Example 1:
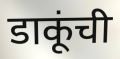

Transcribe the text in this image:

डाकूंची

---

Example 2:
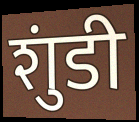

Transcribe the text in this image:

शुंडी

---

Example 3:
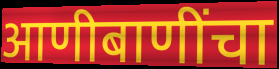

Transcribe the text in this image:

आणीबाणींचा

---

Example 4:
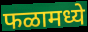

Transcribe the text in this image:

फळामध्ये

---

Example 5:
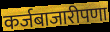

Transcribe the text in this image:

कर्जबाजारीपणा